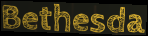
Bethesda